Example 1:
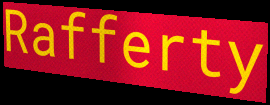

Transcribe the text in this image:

Rafferty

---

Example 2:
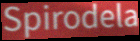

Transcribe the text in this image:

Spirodela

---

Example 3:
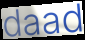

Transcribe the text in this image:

daad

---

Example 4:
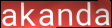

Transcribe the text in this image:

akanda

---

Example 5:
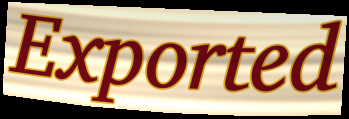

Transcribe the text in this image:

Exported